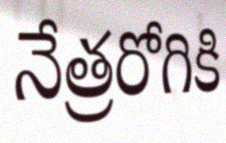
నేత్రరోగికి